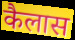
कैलास